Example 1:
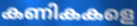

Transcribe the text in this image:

കണികകളെ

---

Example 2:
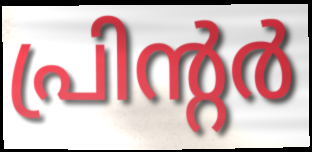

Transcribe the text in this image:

പ്രിന്റർ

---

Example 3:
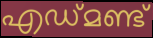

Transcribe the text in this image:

എഡ്മണ്ട്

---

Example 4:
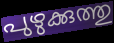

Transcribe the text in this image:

പുഴുക്കുത്തു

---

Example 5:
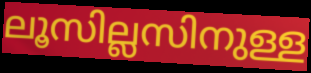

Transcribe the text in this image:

ലൂസില്ലസിനുള്ള